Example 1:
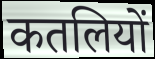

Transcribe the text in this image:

कतलियों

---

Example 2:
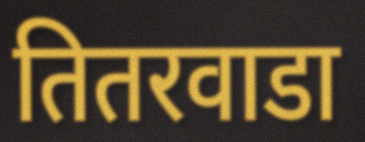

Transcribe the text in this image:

तितरवाडा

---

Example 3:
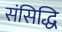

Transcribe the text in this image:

संसिद्धि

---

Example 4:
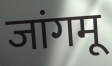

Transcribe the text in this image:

जांगमू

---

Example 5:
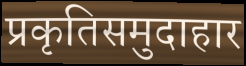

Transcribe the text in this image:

प्रकृतिसमुदाहार